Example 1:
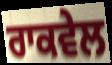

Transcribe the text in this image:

ਰਾਕਵੇਲ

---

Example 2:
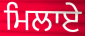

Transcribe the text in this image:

ਮਿਲਾਏ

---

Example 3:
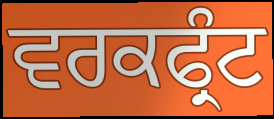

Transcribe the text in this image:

ਵਰਕਫ੍ਰੰਟ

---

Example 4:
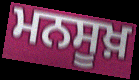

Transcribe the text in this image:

ਮਨਸੂਖ਼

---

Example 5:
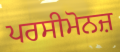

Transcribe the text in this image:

ਪਰਸੀਮੋਨਜ਼